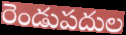
రెండుపదుల